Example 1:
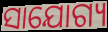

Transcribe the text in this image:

ସାଯୋଗ୍ୟ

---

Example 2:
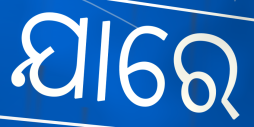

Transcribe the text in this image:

ଯାରେ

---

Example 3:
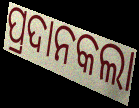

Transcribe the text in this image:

ପ୍ରଦାନକଲା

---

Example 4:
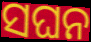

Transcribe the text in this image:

ସଘନ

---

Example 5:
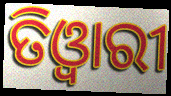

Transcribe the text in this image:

ତିଓ୍ଵାରୀ